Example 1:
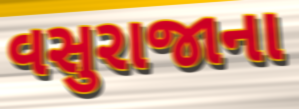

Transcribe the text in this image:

વસુરાજાના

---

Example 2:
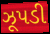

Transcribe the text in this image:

ઝૂપડી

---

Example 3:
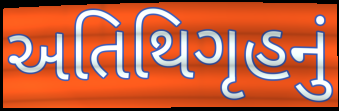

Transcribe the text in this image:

અતિથિગૃહનું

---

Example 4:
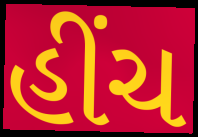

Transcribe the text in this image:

હીંચ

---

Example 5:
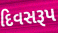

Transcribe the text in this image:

દિવસરૂપ